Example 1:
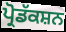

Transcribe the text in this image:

ਪ੍ਰੋਡੱਕਸ਼ਨ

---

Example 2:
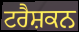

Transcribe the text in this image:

ਟਰੈਸ਼ਕਨ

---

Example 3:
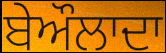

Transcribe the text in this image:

ਬੇਔਲਾਦਾ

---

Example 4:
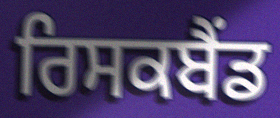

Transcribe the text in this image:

ਰਿਸਕਬੈਂਡ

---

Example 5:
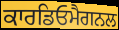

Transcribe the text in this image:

ਕਾਰਡਿਓਮੈਗਨਲ